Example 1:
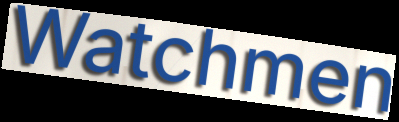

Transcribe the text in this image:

Watchmen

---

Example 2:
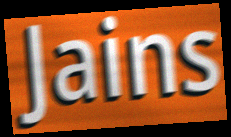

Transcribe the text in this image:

Jains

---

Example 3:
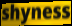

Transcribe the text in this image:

shyness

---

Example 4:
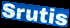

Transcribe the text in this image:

Srutis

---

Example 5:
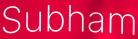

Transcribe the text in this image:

Subham